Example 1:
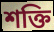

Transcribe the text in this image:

শক্তি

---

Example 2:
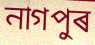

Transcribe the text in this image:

নাগপুৰ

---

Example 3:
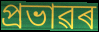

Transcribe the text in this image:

প্ৰভাৱৰ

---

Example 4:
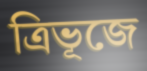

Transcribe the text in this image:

ত্ৰিভূজে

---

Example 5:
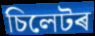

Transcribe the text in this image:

চিলেটৰ